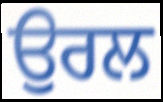
ਉਰਲ